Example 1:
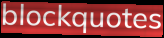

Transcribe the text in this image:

blockquotes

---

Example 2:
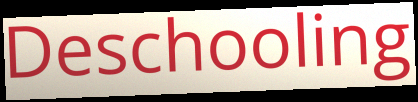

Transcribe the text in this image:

Deschooling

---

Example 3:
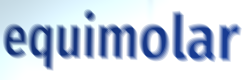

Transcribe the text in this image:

equimolar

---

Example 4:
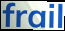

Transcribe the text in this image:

frail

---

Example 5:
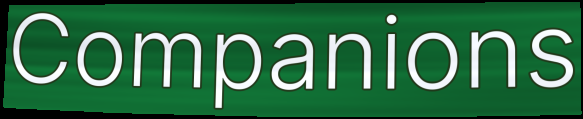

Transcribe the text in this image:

Companions